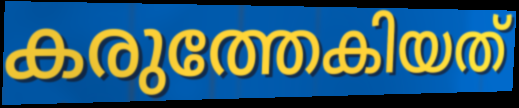
കരുത്തേകിയത്